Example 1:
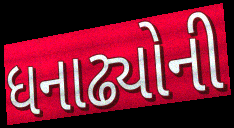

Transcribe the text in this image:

ધનાઢ્યોની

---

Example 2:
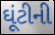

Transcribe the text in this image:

ઘૂંટીની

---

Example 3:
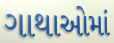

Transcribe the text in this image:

ગાથાઓમાં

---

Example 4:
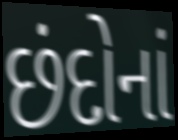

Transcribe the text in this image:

છંદોનાં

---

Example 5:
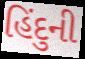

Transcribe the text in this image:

હિંદુની